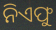
ନିଏଫୁ